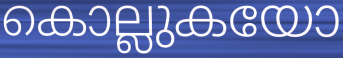
കൊല്ലുകയോ